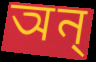
অন্